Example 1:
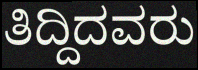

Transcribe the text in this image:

ತಿದ್ದಿದವರು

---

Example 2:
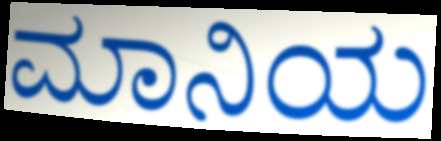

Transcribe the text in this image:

ಮಾನಿಯ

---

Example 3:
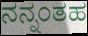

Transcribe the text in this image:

ನನ್ನಂತಹ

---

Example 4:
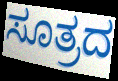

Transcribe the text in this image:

ಸೂತ್ರದ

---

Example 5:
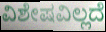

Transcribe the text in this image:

ವಿಶೇಷವಿಲ್ಲದೆ